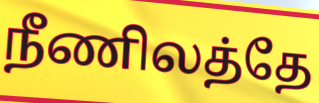
நீணிலத்தே